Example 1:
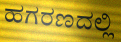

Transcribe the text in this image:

ಹಗರಣದಲ್ಲಿ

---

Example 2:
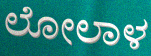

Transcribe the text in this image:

ಲೋಲಾಳ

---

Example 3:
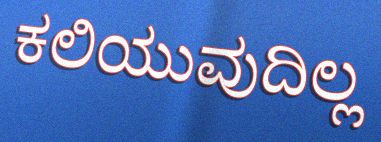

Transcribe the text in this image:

ಕಲಿಯುವುದಿಲ್ಲ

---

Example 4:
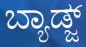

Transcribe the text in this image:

ಬ್ಯಾಡ್ಜ್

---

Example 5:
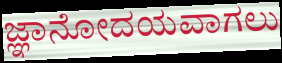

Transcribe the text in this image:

ಜ್ಞಾನೋದಯವಾಗಲು